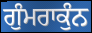
ਗੁੰਮਰਾਕੁੰਨ